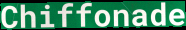
Chiffonade